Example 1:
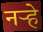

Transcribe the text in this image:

नऱ्हे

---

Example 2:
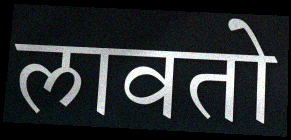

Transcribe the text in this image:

लावतो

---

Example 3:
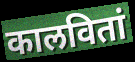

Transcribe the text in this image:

कालवितां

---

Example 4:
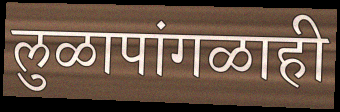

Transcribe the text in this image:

लुळापांगळाही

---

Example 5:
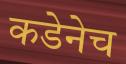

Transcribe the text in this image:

कडेनेच